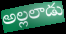
అల్లలాడు